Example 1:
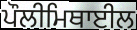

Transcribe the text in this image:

ਪੌਲੀਮਿਥਾਈਲ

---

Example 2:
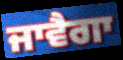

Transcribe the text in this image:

ਜਾਵੈਗਾ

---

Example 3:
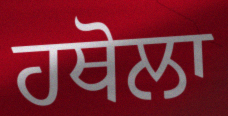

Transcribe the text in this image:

ਹਥੋਲਾ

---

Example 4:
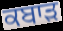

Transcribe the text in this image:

ਕਬਾੜ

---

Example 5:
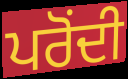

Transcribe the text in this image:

ਪਰੋਂਦੀ